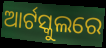
ଆର୍ଟସ୍କୁଲରେ